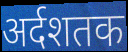
अर्दशतक